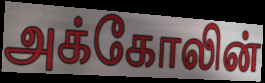
அக்கோலின்